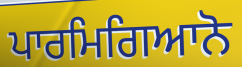
ਪਾਰਮਿਗਿਆਨੋ